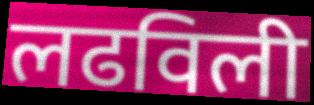
लढविली